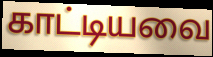
காட்டியவை